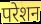
परेशन